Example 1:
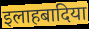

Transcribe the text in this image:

इलाहबादिया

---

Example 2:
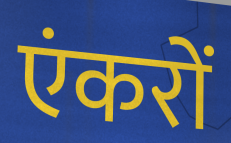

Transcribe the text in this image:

एंकरों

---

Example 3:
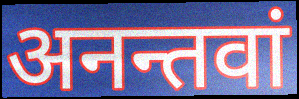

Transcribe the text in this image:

अनन्तवां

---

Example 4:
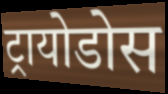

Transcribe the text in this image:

ट्रायोडोस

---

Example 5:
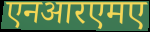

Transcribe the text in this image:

एनआरएमए